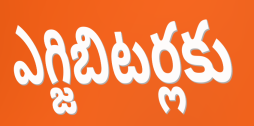
ఎగ్జిబిటర్లకు